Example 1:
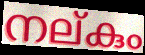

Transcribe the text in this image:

നല്‌കും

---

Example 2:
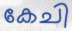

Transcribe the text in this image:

കേചി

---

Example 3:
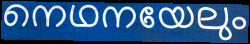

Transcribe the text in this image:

നെഥനയേലും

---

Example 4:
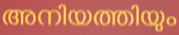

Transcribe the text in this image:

അനിയത്തിയും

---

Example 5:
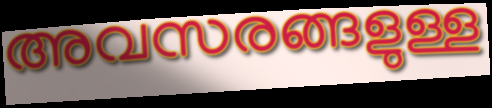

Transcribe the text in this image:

അവസരങ്ങളുള്ള